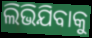
ଲିଭିଯିବାକୁ